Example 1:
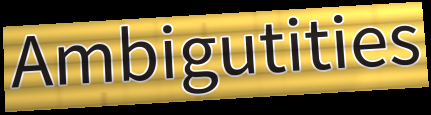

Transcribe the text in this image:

Ambigutities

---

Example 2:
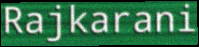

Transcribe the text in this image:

Rajkarani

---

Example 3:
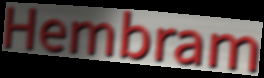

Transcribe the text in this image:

Hembram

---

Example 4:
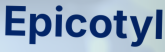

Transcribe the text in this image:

Epicotyl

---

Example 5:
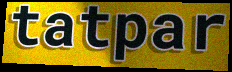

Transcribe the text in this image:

tatpar